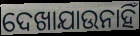
ଦେଖାଯାଉନାହିଁ